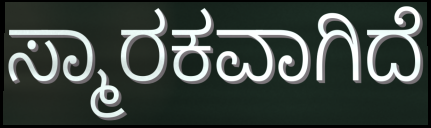
ಸ್ಮಾರಕವಾಗಿದೆ